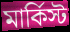
মার্কিস্ট